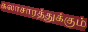
கலாசாரத்துக்கும்